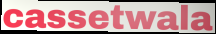
cassetwala